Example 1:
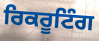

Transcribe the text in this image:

ਰਿਕਰੂਟਿੰਗ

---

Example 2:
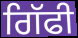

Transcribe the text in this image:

ਗਿੱਫੀ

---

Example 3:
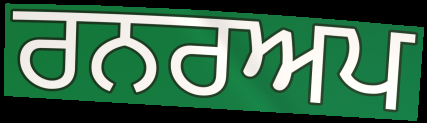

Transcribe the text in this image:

ਰਨਰਅਪ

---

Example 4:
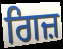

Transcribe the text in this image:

ਗਿਜ਼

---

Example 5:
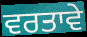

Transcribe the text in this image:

ਵਰਤਾਵੇ